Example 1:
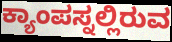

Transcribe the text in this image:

ಕ್ಯಾಂಪಸ್ನಲ್ಲಿರುವ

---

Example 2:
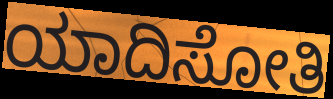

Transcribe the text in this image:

ಯಾದಿಸೋತಿ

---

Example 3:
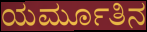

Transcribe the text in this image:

ಯರ್ಮೂತಿನ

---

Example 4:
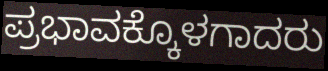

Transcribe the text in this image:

ಪ್ರಭಾವಕ್ಕೊಳಗಾದರು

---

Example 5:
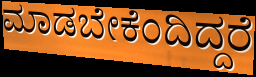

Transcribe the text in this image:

ಮಾಡಬೇಕೆಂದಿದ್ದರೆ